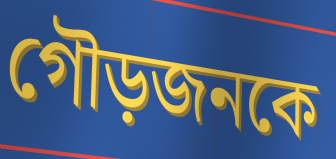
গৌড়জনকে